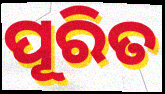
ପୂରିତ